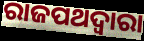
ରାଜପଥଦ୍ୱାରା